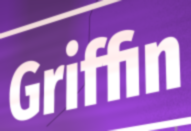
Griffin